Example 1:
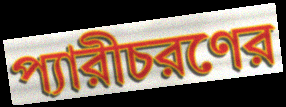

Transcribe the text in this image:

প্যারীচরণের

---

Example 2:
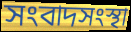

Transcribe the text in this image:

সংবাদসংস্থা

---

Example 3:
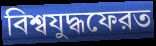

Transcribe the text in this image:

বিশ্বযুদ্ধফেরত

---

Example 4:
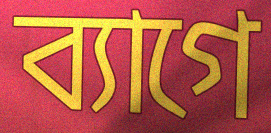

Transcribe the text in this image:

ব্যাগে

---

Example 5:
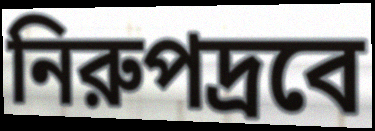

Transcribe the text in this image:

নিরুপদ্রবে